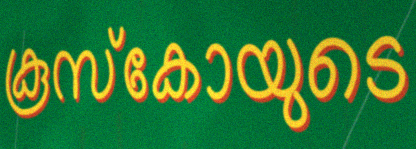
കൂസ്കോയുടെ